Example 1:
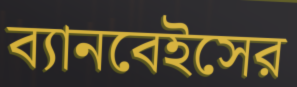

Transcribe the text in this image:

ব্যানবেইসের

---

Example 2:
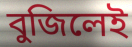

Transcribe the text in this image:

বুজিলেই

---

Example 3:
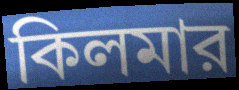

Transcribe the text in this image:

কিলমার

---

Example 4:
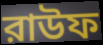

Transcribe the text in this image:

রাউফ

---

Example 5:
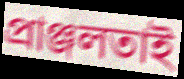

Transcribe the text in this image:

প্রাঞ্জলতাই